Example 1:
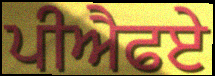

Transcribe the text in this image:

ਪੀਐਫਏ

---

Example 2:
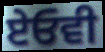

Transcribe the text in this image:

ਏਓਵੀ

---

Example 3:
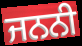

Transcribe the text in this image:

ਜਨਨੀ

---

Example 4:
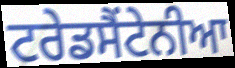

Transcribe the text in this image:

ਟਰੇਡਸੈਂਟੇਨੀਆ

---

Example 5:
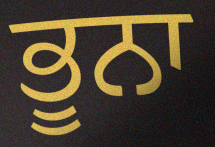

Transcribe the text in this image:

ਭੂਨਾ